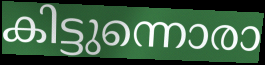
കിട്ടുന്നൊരാ